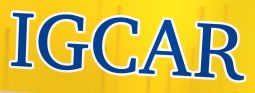
IGCAR